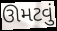
ઊમટવું